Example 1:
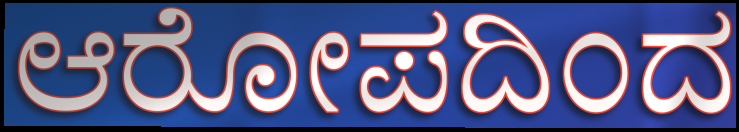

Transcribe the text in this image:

ಆರೋಪದಿಂದ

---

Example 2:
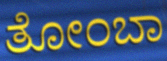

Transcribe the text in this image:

ತೋಂಬಾ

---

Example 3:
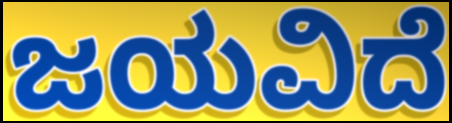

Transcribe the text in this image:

ಜಯವಿದೆ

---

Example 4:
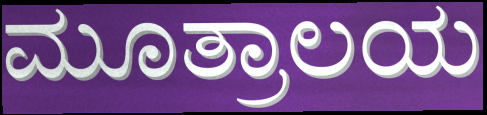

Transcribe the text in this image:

ಮೂತ್ರಾಲಯ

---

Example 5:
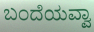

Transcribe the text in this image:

ಬಂದೆಯವ್ವಾ